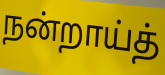
நன்றாய்த்